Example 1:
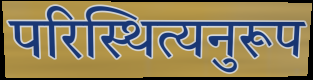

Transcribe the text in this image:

परिस्थित्यनुरूप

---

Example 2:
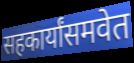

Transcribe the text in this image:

सहकार्यांसमवेत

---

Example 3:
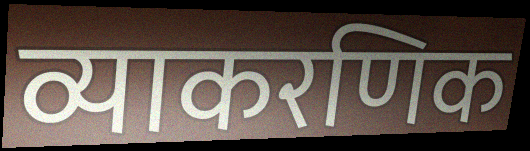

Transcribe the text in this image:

व्याकरणिक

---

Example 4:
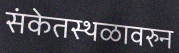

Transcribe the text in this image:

संकेतस्थळावरुन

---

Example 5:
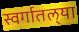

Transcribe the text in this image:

स्वर्गातल्या